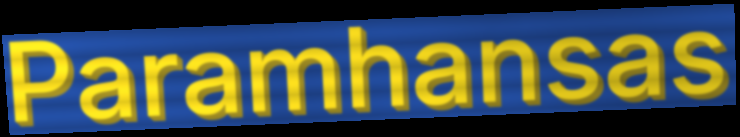
Paramhansas